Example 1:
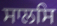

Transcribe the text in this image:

ਸਾਲਸਿ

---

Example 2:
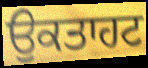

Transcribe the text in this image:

ਉਕਤਾਹਟ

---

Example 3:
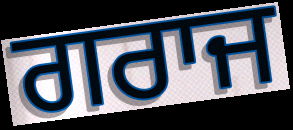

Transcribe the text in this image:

ਗਰਾਜ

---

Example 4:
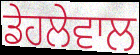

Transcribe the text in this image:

ਡੇਹਲੇਵਾਲ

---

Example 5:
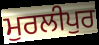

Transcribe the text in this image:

ਮੁਰਲੀਪੁਰ